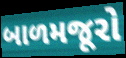
બાળમજૂરો